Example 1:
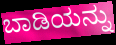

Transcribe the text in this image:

ಬಾಡಿಯನ್ನು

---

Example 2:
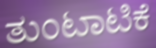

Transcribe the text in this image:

ತುಂಟಾಟಿಕೆ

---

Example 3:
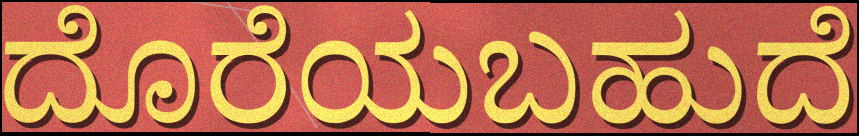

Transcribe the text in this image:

ದೊರೆಯಬಹುದೆ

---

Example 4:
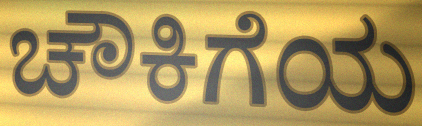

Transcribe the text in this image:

ಚೌಕಿಗೆಯ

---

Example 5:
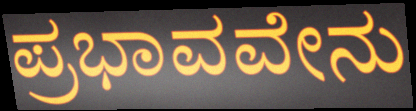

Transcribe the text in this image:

ಪ್ರಭಾವವೇನು